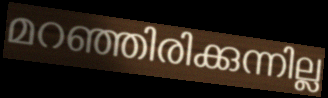
മറഞ്ഞിരിക്കുന്നില്ല